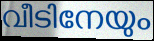
വീടിനേയും